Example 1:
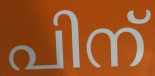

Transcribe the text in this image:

പിന്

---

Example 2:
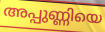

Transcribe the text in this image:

അപ്പുണ്ണിയെ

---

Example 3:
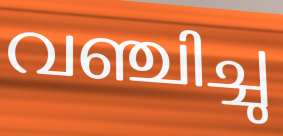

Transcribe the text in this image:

വഞ്ചിച്ചു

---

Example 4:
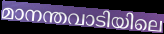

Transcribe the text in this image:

മാനന്തവാടിയിലെ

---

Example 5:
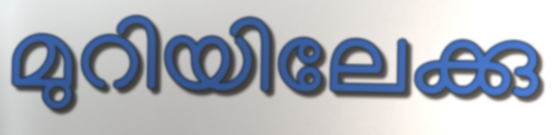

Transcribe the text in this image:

മുറിയിലേക്കു